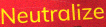
Neutralize